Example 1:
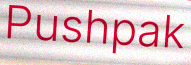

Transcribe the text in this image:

Pushpak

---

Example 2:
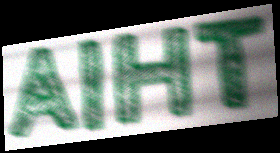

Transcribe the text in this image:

AIHT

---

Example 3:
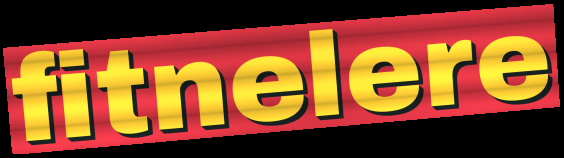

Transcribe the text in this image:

fitnelere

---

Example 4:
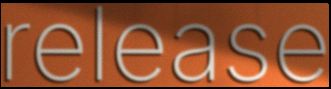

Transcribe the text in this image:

release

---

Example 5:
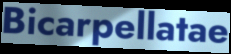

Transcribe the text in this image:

Bicarpellatae